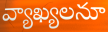
వ్యాఖ్యలనూ